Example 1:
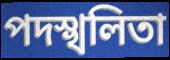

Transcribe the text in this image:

পদস্খলিতা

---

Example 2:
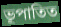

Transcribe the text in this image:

ভূপাতিত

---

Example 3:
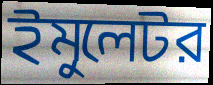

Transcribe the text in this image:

ইমুলেটর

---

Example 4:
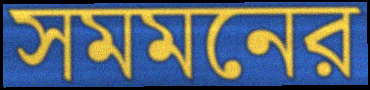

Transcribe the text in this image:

সমমনের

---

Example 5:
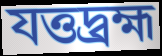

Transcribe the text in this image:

যত্তদ্ব্রহ্ম